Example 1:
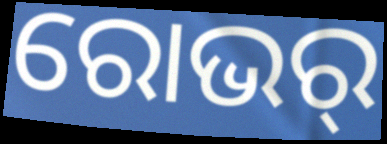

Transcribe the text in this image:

ରୋଭର୍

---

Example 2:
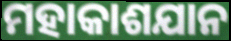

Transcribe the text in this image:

ମହାକାଶଯାନ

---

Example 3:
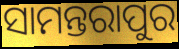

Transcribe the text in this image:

ସାମନ୍ତରାପୁର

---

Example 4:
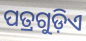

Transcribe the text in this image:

ପତ୍ରଗୁଡ଼ିଏ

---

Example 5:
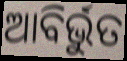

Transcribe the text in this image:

ଆବିର୍ଭୁତ